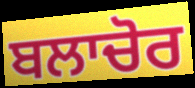
ਬਲਾਚੋਰ